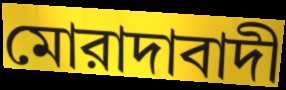
মোরাদাবাদী